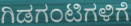
ಗಿಡಗಂಟಿಗಳಿಗೆ